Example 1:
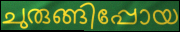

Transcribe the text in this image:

ചുരുങ്ങിപ്പോയ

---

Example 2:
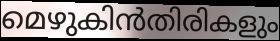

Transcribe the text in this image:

മെഴുകിൻതിരികളും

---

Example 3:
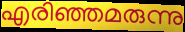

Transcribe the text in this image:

എരിഞ്ഞമരുന്നു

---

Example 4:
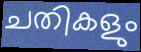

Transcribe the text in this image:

ചതികളും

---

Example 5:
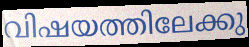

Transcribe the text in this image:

വിഷയത്തിലേക്കു